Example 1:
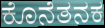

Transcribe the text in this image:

ಕೊನೆತನಕ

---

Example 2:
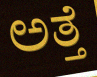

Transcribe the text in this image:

ಅತ್ತೆ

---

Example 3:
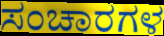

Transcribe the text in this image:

ಸಂಚಾರಗಳ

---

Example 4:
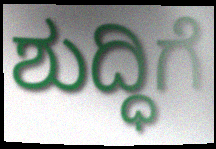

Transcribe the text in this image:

ಶುದ್ಧಿಗೆ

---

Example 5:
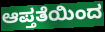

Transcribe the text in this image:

ಆಪ್ತತೆಯಿಂದ